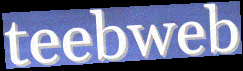
teebweb